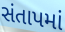
સંતાપમાં